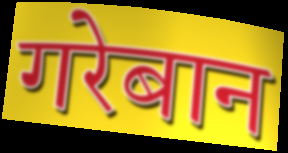
गरेबान